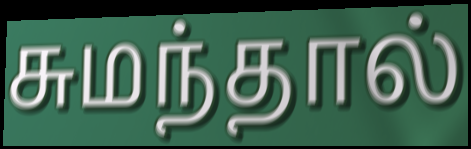
சுமந்தால்